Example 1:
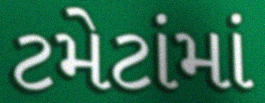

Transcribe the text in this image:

ટમેટાંમાં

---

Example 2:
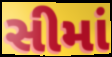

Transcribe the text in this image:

સીમાં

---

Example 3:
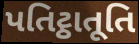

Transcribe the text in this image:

પતિટ્ઠાતૂતિ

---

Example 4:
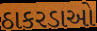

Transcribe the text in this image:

ઠાકરડાઓ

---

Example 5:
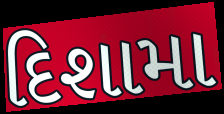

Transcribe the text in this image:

દિશામા